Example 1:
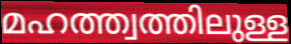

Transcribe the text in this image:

മഹത്ത്വത്തിലുള്ള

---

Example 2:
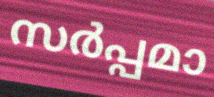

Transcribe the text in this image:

സർപ്പമാ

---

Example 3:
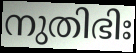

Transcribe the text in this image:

നുതിഭിഃ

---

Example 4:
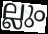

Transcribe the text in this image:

ല്ലും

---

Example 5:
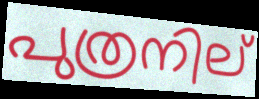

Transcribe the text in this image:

പുത്രനില്